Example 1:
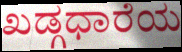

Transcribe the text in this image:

ಖಡ್ಗಧಾರೆಯ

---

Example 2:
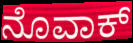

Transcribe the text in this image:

ನೊವಾಕ್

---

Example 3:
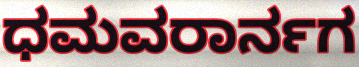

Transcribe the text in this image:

ಧಮವರಾರ್ನಗ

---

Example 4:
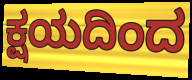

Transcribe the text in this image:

ಕ್ಷಯದಿಂದ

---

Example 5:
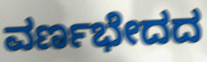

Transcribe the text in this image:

ವರ್ಣಭೇದದ